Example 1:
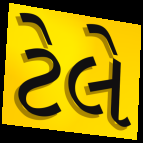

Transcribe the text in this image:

ટેલે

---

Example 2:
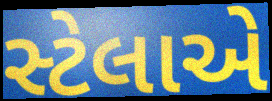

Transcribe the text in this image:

સ્ટેલાએ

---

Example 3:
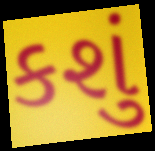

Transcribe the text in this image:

કશું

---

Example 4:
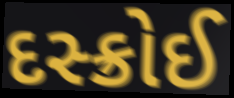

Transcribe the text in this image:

દસ્ક્રોઈ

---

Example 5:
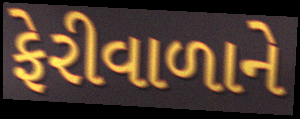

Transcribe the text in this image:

ફેરીવાળાને